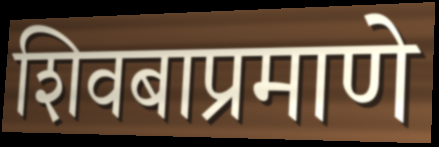
शिवबाप्रमाणे